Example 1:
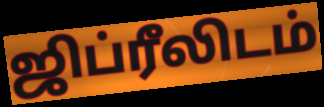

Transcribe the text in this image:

ஜிப்ரீலிடம்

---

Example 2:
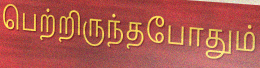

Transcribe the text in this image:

பெற்றிருந்தபோதும்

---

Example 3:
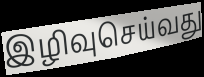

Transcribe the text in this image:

இழிவுசெய்வது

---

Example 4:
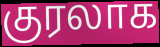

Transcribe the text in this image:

குரலாக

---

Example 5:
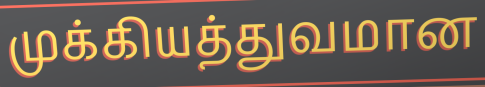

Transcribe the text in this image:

முக்கியத்துவமான